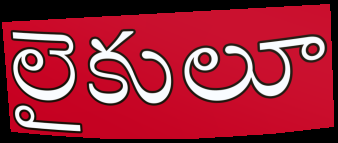
లైకులూ